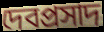
দেবপ্রসাদ